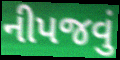
નીપજવું